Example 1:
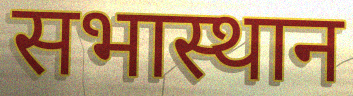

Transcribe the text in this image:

सभास्थान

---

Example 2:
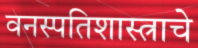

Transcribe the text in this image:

वनस्पतिशास्त्राचे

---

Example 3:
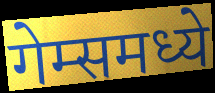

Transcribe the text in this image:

गेम्समध्ये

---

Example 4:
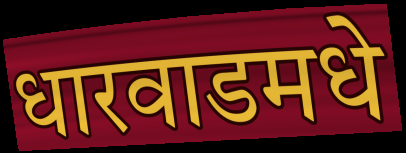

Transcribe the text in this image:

धारवाडमधे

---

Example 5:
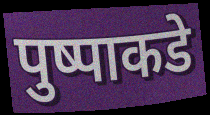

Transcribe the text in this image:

पुष्पाकडे